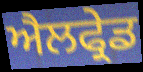
ਐਲਫ੍ਰੇਡ